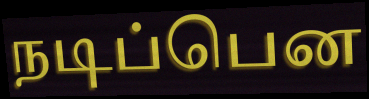
நடிப்பென